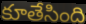
కూతేసింది